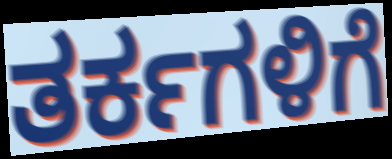
ತರ್ಕಗಳಿಗೆ